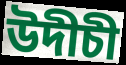
উদীচী